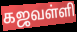
கஜவள்ளி